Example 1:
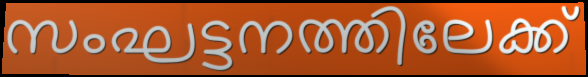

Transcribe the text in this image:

സംഘട്ടനത്തിലേക്ക്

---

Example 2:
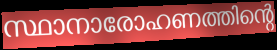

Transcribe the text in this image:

സ്ഥാനാരോഹണത്തിന്റെ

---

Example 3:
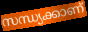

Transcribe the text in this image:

സന്ധ്യക്കാണ്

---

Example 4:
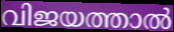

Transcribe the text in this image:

വിജയത്താൽ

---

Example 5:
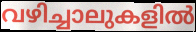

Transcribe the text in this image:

വഴിച്ചാലുകളിൽ